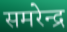
समरेन्द्र